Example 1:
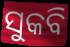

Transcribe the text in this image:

ସୁକବି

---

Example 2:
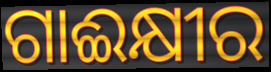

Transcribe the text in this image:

ଗାଈକ୍ଷୀର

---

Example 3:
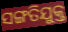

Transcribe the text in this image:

ସଙ୍ଗତିଯୁକ୍ତ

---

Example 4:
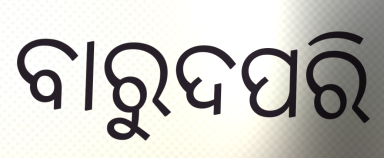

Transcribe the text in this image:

ବାରୁଦପରି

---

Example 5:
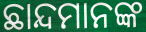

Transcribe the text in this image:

ଛାନ୍ଦମାନଙ୍କ